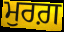
ਮੁਰਗ਼